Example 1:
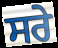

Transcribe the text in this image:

ਸਰੇ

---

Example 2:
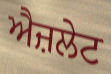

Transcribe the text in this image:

ਐਜ਼ਲੇਟ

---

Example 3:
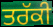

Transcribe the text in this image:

ਤਰੱਕੀ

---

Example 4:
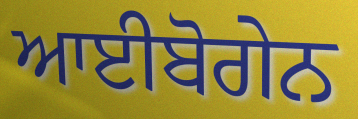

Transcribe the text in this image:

ਆਈਬੋਗੇਨ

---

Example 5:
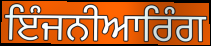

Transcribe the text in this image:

ਇੰਜਨੀਆਰਿੰਗ